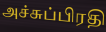
அச்சுப்பிரதி